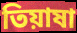
তিয়াষা